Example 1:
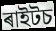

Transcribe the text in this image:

ৰাইটচ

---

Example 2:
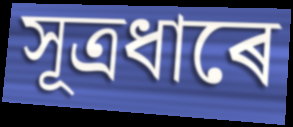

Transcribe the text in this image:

সূত্ৰধাৰে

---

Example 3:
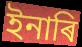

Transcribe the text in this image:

ইনাৰি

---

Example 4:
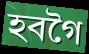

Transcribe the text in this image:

হবগৈ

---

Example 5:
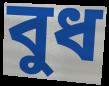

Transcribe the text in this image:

বুধ